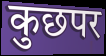
कुछपर